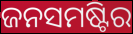
ଜନସମଷ୍ଟିର